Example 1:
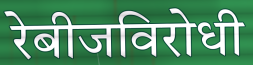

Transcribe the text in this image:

रेबीजविरोधी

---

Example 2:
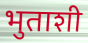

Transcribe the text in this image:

भुताशी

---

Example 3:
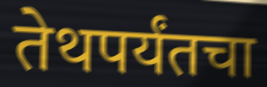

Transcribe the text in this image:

तेथपर्यंतचा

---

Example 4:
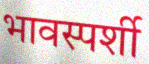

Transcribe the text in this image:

भावस्पर्शी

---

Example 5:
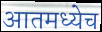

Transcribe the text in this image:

आतमध्येच